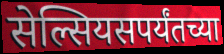
सेल्सियसपर्यंतच्या